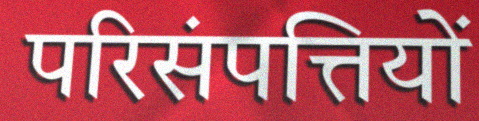
परिसंपत्तियों